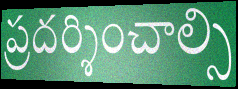
ప్రదర్శించాల్సి